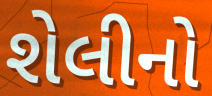
શેલીનો